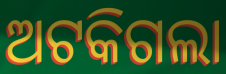
ଅଟକିଗଲା